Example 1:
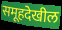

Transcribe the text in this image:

समूहदेखील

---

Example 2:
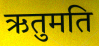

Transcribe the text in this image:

ऋतुमति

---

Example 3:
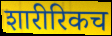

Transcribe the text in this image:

शारीरिकच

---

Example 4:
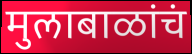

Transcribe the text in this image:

मुलाबाळांचं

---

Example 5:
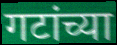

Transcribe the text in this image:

गटांच्या